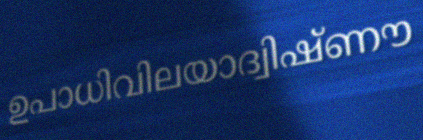
ഉപാധിവിലയാദ്വിഷ്ണൗ